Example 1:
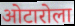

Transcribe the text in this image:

ओटारोला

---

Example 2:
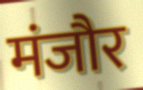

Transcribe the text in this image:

मंजौर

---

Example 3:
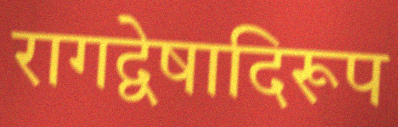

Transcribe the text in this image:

रागद्वेषादिरूप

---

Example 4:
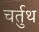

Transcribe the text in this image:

चर्तुथ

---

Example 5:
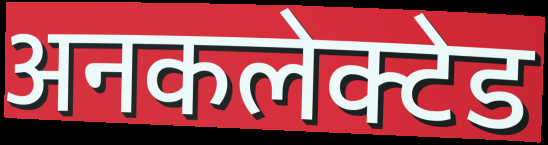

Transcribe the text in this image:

अनकलेक्टेड